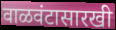
वाळवंटासारखी